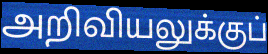
அறிவியலுக்குப்